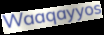
Waaqayyos